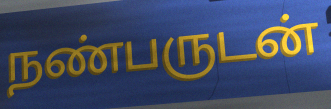
நண்பருடன்